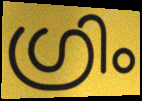
ഗ്രിം